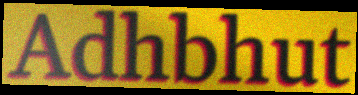
Adhbhut